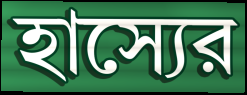
হাস্যের